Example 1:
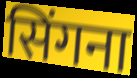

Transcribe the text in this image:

सिंगना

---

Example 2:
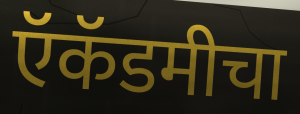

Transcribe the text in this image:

ऍकॅडमीचा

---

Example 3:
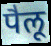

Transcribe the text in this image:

पैलू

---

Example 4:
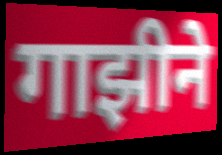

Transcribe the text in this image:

गाझीने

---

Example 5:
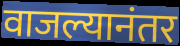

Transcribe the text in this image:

वाजल्यानंतर